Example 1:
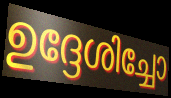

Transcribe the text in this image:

ഉദ്ദേശിച്ചോ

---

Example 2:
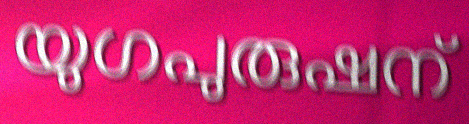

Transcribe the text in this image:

യുഗപുരുഷന്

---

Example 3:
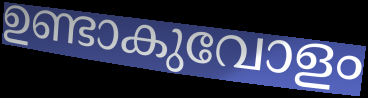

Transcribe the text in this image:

ഉണ്ടാകുവോളം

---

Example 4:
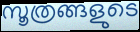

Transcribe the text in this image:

സൂത്രങ്ങളുടെ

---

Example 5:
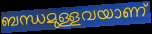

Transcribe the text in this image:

ബന്ധമുള്ളവയാണ്